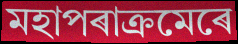
মহাপৰাক্ৰমেৰে